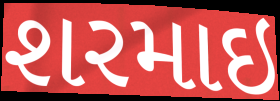
શરમાઇ